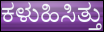
ಕಳುಹಿಸಿತ್ತು